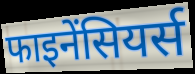
फाइनेंसियर्स